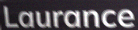
Laurance